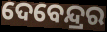
ଦେବେନ୍ଦ୍ରର